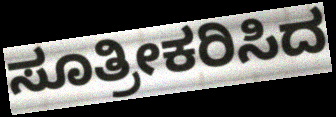
ಸೂತ್ರೀಕರಿಸಿದ